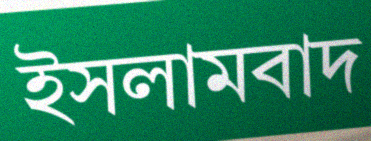
ইসলামবাদ